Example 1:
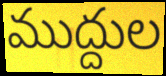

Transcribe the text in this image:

ముద్దుల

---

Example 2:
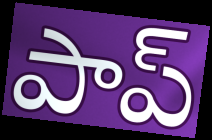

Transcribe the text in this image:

పాప్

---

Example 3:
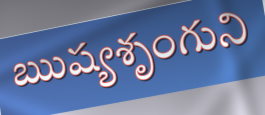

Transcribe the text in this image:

ఋష్యశృంగుని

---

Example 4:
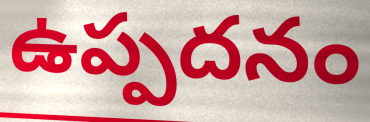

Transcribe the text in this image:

ఉప్పదనం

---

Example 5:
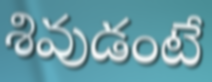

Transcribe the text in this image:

శివుడంటే